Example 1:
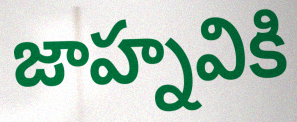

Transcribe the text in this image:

జాహ్నవికి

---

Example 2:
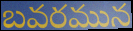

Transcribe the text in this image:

బవరమున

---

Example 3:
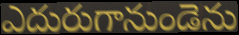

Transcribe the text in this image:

ఎదురుగానుండెను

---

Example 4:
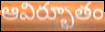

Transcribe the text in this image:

ఆవిర్భూతం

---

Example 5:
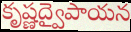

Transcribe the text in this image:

కృష్ణద్వైపాయన